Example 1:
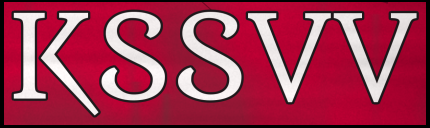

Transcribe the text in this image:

KSSVV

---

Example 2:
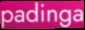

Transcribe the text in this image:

padinga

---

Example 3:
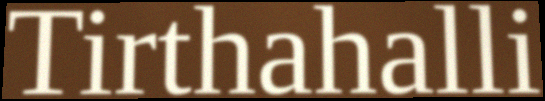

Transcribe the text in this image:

Tirthahalli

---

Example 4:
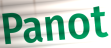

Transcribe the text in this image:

Panot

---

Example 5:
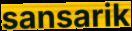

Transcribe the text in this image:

sansarik